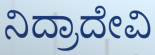
ನಿದ್ರಾದೇವಿ